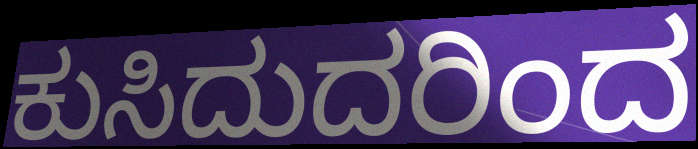
ಕುಸಿದುದರಿಂದ